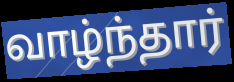
வாழ்ந்தார்